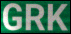
GRK